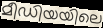
മീഡിയയിലെ